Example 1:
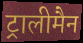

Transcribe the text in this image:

ट्रालीमैन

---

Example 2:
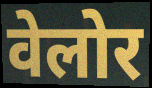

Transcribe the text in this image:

वेलोर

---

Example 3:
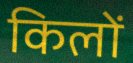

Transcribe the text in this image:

किलों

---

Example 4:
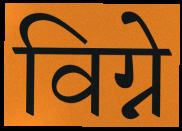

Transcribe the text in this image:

विग्ने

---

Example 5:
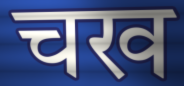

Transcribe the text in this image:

चख